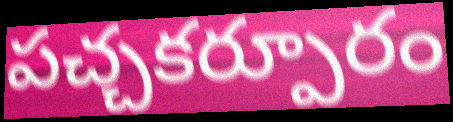
పచ్చకర్పూరం